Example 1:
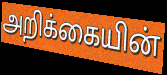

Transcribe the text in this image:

அறிக்கையின்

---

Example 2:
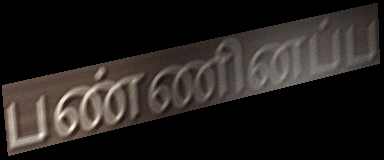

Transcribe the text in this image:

பண்ணினப்ப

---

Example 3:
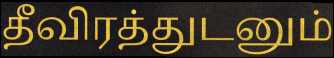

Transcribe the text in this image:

தீவிரத்துடனும்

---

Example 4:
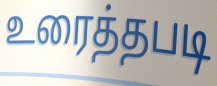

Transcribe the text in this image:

உரைத்தபடி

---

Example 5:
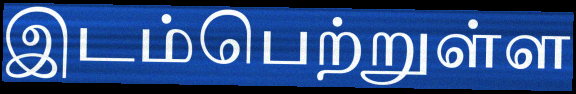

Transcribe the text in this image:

இடம்பெற்றுள்ள